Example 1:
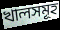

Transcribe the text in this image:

খালসমূহ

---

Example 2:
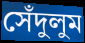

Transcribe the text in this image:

সেঁদুলুম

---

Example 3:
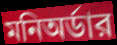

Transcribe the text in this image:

মনিঅর্ডার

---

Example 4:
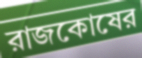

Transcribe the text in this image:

রাজকোষের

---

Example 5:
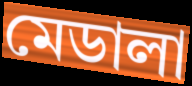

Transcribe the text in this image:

মেডালা